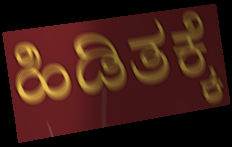
ಹಿಡಿತಕ್ಕೆ